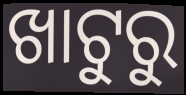
ଖାଟୁରୁ